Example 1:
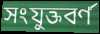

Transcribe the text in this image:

সংযুক্তবর্ণ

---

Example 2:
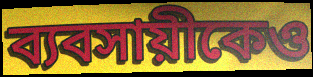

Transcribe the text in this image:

ব্যবসায়ীকেও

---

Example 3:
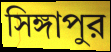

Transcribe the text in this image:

সিঙ্গাপুর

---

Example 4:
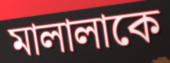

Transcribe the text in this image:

মালালাকে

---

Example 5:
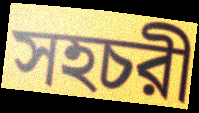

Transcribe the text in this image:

সহচরী